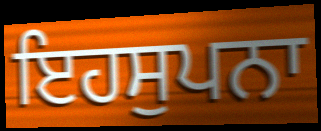
ਇਹਸੁਪਨਾ